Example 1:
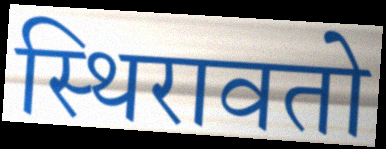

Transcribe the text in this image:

स्थिरावतो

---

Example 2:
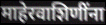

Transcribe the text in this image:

माहेरवाशिणींना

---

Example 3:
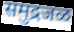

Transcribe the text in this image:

समुद्रजळ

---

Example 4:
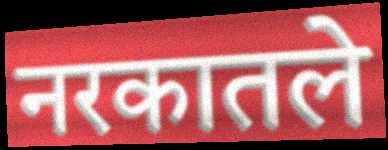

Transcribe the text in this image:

नरकातले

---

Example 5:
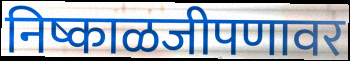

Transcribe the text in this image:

निष्काळजीपणावर